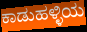
ಕಾಡುಹಳ್ಳಿಯ